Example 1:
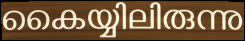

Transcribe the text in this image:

കൈയ്യിലിരുന്നു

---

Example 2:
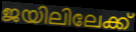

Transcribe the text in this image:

ജയിലിലേക്ക്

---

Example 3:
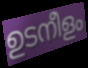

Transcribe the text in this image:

ഉടനീളം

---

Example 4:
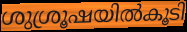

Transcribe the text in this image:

ശുശ്രൂഷയിൽകൂടി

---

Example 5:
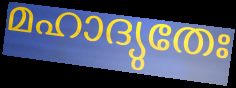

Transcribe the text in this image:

മഹാദ്യുതേഃ